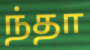
ந்தா